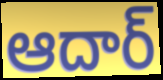
ఆదార్